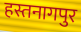
हस्तनागपुर